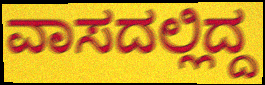
ವಾಸದಲ್ಲಿದ್ದ